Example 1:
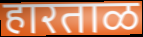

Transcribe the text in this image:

हारताळ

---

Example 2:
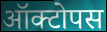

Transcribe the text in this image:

ऑक्टोपस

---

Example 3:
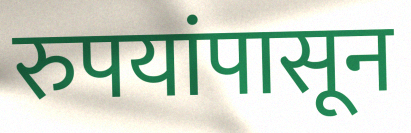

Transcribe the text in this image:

रुपयांपासून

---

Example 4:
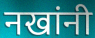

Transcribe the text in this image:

नखांनी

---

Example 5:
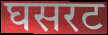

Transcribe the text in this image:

घसरट